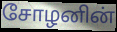
சோழனின்